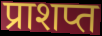
प्राशप्त